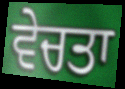
ਵੇਚਤਾ